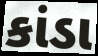
કાંડા